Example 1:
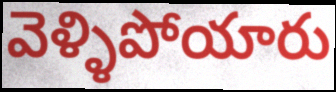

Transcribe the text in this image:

వెళ్ళిపోయారు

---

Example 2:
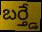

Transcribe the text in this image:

బర్త్డే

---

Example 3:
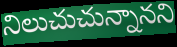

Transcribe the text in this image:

నిలుచుచున్నానని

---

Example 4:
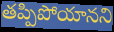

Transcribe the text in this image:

తప్పిపోయానని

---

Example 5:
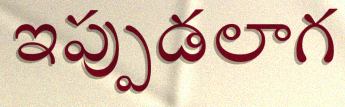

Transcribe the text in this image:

ఇప్పుడలాగ